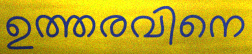
ഉത്തരവിനെ